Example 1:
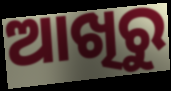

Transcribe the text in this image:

ଆଖିରୁ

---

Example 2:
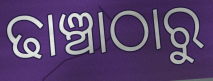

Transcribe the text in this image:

ଢାଞ୍ଚାଠାରୁ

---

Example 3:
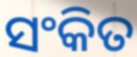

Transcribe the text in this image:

ସଂକିତ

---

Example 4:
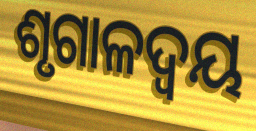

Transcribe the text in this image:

ଶୃଗାଳଦ୍ୱୟ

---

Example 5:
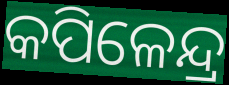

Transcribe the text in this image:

କପିଳେନ୍ଦ୍ର